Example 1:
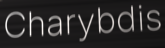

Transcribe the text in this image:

Charybdis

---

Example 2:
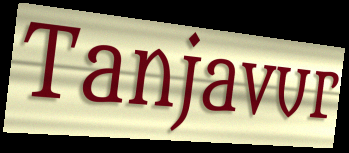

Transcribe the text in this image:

Tanjavur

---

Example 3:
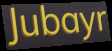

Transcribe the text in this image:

Jubayr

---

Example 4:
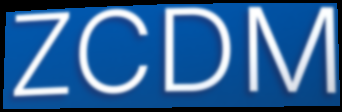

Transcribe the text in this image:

ZCDM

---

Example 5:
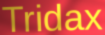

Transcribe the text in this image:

Tridax